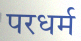
परधर्म